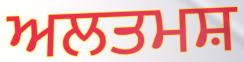
ਅਲਤਮਸ਼